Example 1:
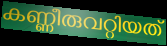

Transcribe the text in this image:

കണ്ണീരുവറ്റിയത്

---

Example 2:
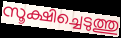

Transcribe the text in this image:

സൂക്ഷിച്ചെടുത്തു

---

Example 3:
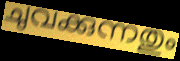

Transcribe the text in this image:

ചുവക്കുന്നതും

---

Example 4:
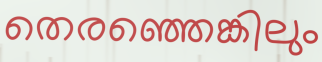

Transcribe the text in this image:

തെരഞ്ഞെങ്കിലും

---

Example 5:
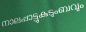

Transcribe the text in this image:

നാലപ്പാട്ടുകുടുംബവും